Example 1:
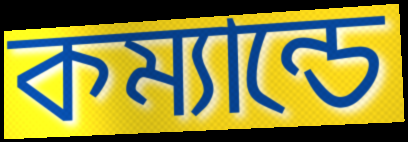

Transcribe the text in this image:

কম্যান্ডে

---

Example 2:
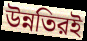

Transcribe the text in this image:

উন্নতিরই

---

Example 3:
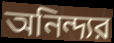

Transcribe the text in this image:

অনিন্দ্যর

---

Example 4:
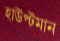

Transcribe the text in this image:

হাউপ্টমান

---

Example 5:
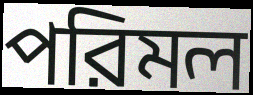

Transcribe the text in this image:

পরিমল